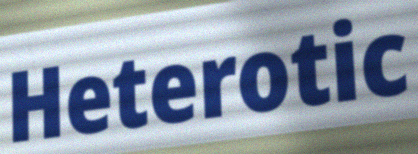
Heterotic